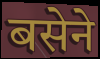
बसेने